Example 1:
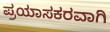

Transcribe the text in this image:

ಪ್ರಯಾಸಕರವಾಗಿ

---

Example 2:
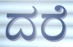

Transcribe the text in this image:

ದರೆ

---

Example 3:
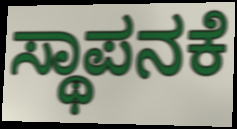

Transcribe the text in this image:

ಸ್ಥಾಪನಕೆ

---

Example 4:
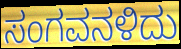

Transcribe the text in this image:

ಸಂಗವನಳಿದು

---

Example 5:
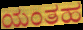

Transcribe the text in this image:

ಯಂತಹ